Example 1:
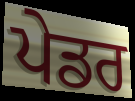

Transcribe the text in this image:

ਪੇਡਰ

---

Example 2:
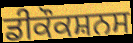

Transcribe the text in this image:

ਡੀਕੌਕਸ਼ਨਸ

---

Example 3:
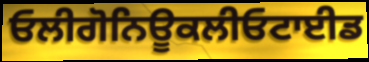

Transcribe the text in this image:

ਓਲੀਗੋਨਿਊਕਲੀਓਟਾਈਡ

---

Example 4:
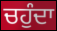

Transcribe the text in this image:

ਚਹੁੰਦਾ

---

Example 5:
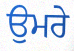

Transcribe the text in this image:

ਉਮਰੇ